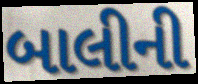
બાલીની